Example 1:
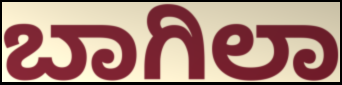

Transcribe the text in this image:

ಬಾಗಿಲಾ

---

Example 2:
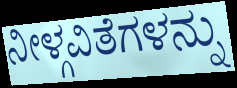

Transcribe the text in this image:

ನೀಳ್ಗವಿತೆಗಳನ್ನು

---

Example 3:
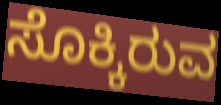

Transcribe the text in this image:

ಸೊಕ್ಕಿರುವ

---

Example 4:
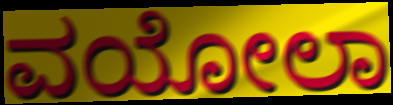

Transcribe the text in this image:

ವಯೋಲಾ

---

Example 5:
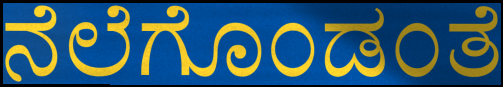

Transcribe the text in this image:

ನೆಲೆಗೊಂಡಂತೆ